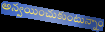
అన్వయించుకుంటున్నాం